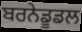
ਬਰਨੇਡੂਡਲ